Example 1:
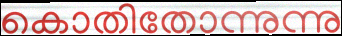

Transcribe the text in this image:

കൊതിതോന്നുന്നു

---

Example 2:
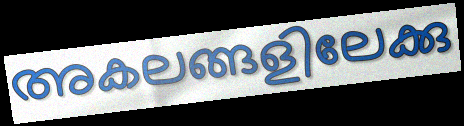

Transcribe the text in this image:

അകലങ്ങളിലേക്കു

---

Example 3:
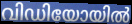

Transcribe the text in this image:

വിഡിയോയിൽ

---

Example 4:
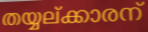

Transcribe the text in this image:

തയ്യല്ക്കാരന്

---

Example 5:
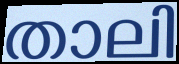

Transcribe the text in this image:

താലി